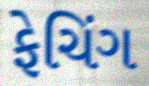
ફેચિંગ